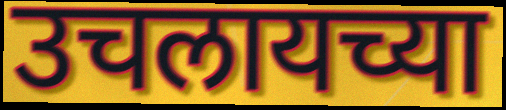
उचलायच्या